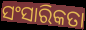
ସଂସାରିକତା